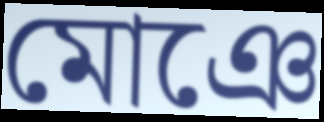
মোঞে